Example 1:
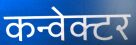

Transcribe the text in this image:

कन्वेक्टर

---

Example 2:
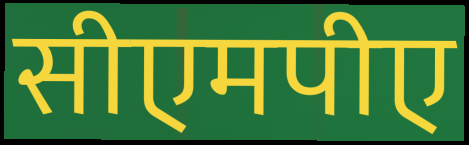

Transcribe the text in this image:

सीएमपीए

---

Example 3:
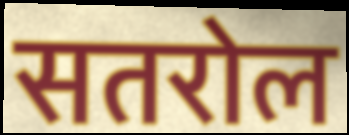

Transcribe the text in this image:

सतरोल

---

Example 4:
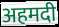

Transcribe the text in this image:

अहमदी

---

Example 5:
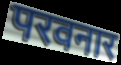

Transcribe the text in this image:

परवनार